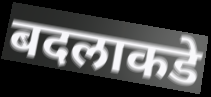
बदलाकडे